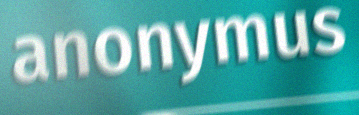
anonymus